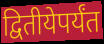
द्वितीयेपर्यंत